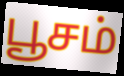
பூசம்